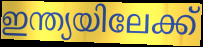
ഇന്ത്യയിലേക്ക്